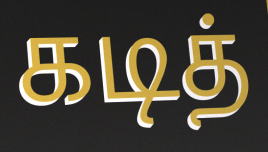
கடித்